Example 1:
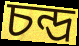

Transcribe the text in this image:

চন্দ্ৰ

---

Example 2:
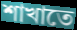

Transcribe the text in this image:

শাখাতে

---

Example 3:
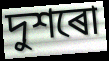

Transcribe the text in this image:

দুশৰো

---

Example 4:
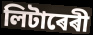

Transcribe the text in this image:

লিটাৰেৰী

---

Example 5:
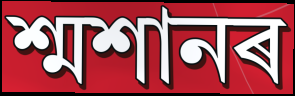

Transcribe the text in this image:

শ্মশানৰ